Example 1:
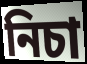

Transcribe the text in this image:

নিচা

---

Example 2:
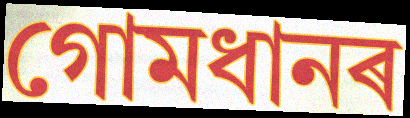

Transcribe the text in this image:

গোমধানৰ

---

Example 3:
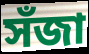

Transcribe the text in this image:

সঁজা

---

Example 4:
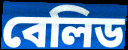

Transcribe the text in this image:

বেলিড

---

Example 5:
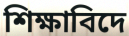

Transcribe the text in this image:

শিক্ষাবিদে